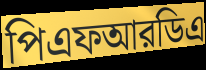
পিএফআরডিএ